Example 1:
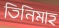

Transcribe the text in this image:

তিনিমাহ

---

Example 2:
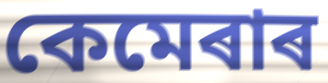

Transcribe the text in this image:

কেমেৰাৰ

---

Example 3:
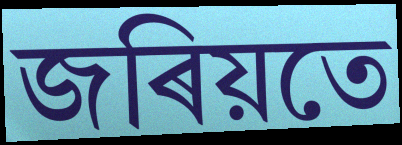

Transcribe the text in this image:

জৰিয়তে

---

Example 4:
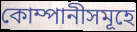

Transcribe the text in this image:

কোম্পানীসমূহে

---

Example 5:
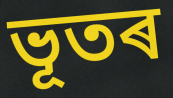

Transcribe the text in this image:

ভূতৰ